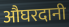
औघरदानी